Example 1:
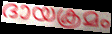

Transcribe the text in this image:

ദായക്രമം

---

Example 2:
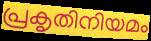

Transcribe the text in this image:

പ്രകൃതിനിയമം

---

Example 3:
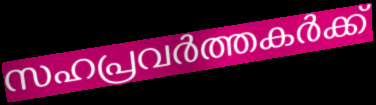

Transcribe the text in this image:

സഹപ്രവർത്തകർക്ക്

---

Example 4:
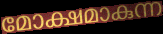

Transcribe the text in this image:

മോക്ഷമാകുന്ന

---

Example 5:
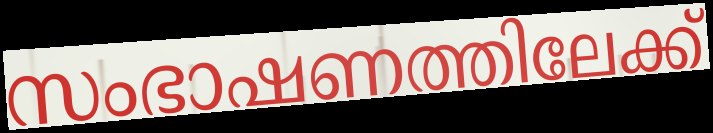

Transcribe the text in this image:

സംഭാഷണത്തിലേക്ക്